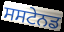
ਸਸਟੇਨਡ